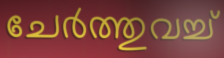
ചേർത്തുവച്ച്